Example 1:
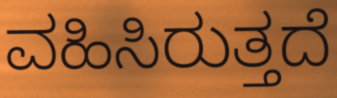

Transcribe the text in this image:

ವಹಿಸಿರುತ್ತದೆ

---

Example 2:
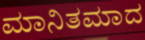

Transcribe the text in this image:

ಮಾನಿತಮಾದ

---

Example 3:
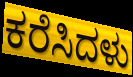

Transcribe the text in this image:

ಕರೆಸಿದಳು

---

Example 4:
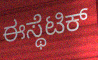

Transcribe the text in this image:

ಈಸ್ಥೆಟಿಕ್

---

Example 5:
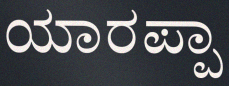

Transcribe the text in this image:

ಯಾರಪ್ಪಾ